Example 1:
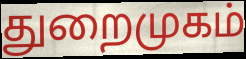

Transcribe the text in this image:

துறைமுகம்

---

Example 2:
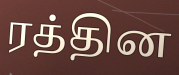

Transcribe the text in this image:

ரத்தின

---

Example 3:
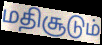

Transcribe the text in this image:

மதிசூடும்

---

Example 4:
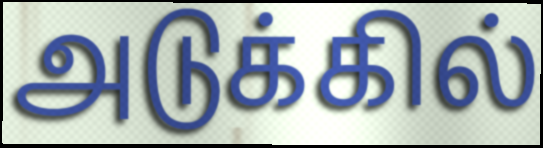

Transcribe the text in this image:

அடுக்கில்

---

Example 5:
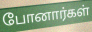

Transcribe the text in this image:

போனார்கள்